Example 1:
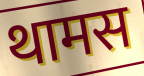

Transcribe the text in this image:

थामस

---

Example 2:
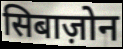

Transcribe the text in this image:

सिबाज़ोन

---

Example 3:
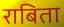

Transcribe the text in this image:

राबिता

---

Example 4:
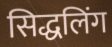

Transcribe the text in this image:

सिद्धलिंग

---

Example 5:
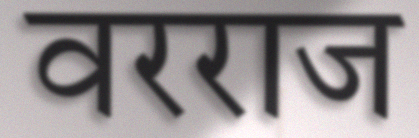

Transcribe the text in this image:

वरराज